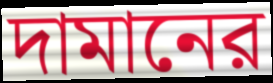
দামানের